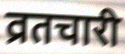
व्रतचारी